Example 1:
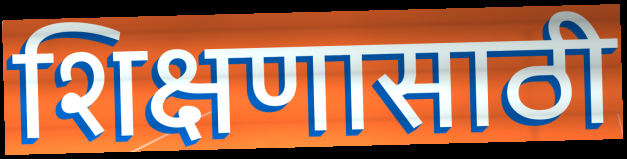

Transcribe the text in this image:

शिक्षणासाठी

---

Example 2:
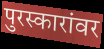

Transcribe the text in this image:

पुरस्कारांवर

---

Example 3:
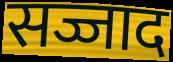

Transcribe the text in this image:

सज्जाद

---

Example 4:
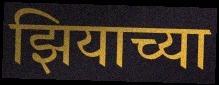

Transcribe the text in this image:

झियाच्या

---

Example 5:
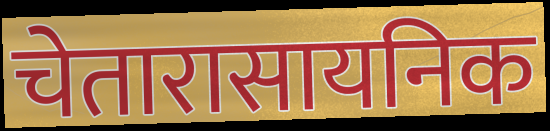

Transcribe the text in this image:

चेतारासायनिक